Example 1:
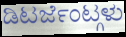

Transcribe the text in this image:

ಡಿಟರ್ಜೆಂಟ್ಗಳು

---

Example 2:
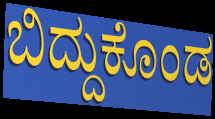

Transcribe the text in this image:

ಬಿದ್ದುಕೊಂಡ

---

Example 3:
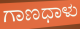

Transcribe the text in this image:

ಗಾಣಧಾಳು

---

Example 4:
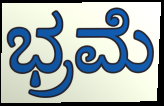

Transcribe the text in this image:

ಭ್ರಮೆ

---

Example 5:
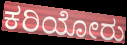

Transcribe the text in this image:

ಕರಿಯೋರು